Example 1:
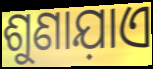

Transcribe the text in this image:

ଶୁଣାଯ଼ାଏ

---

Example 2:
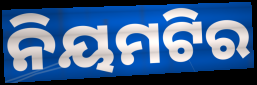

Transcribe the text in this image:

ନିୟମଟିର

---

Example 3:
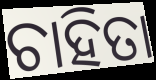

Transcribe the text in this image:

ଚାହିତା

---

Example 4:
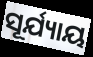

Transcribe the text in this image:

ସୂର୍ଯ୍ୟାୟ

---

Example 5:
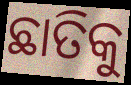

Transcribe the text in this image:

ଛାତିକୁ